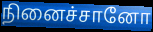
நினைச்சானோ